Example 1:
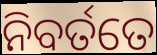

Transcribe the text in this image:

ନିବର୍ତତେ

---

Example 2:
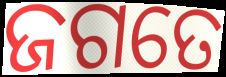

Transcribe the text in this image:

ଜଗତେ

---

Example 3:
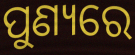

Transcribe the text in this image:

ପୁଣ୍ୟରେ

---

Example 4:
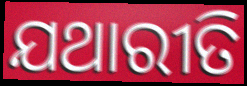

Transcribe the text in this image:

ଯଥାରୀତି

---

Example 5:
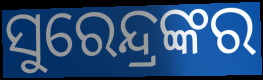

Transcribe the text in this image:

ସୁରେନ୍ଦ୍ରଙ୍କର